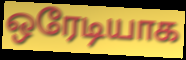
ஒரேடியாக